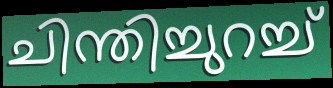
ചിന്തിച്ചുറച്ച്